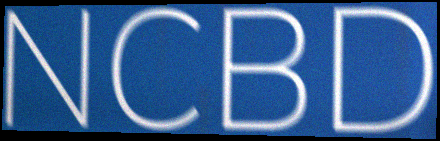
NCBD